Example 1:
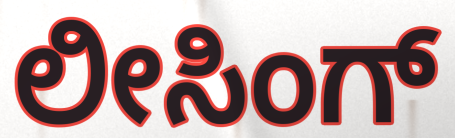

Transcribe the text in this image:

ಲೀಸಿಂಗ್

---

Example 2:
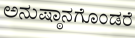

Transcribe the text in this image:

ಅನುಷ್ಠಾನಗೊಂಡರೆ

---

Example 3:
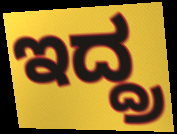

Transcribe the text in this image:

ಇದ್ದ್ರ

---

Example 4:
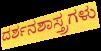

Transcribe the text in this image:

ದರ್ಶನಶಾಸ್ತ್ರಗಳು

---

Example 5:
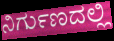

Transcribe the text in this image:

ನಿರ್ಗುಣದಲ್ಲಿ